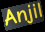
Anjil